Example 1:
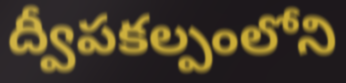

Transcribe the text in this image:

ద్వీపకల్పంలోని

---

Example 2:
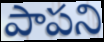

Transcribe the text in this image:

పాపని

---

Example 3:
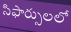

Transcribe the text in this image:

సిఫార్సులలో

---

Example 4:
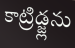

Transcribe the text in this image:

కాట్రిడ్జ్లను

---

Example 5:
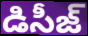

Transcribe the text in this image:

డిసీజ్